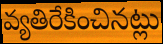
వ్యతిరేకించినట్లు